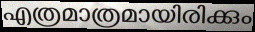
എത്രമാത്രമായിരിക്കും